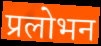
प्रलोभन